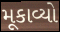
મૂકાવ્યો